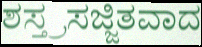
ಶಸ್ತ್ರಸಜ್ಜಿತವಾದ